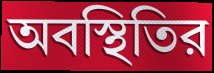
অবস্থিতির